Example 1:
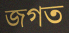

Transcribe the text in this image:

জগত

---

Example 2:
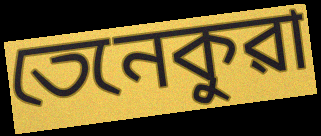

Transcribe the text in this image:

তেনেকুৱা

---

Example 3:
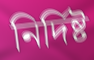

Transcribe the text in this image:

নিৰ্দিষ্ট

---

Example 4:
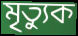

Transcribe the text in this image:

মৃত্যুক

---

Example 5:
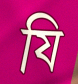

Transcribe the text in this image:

যি